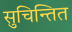
सुचिन्तित